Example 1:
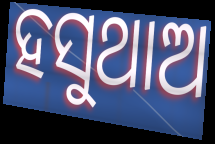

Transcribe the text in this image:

ହସୁଥାଅ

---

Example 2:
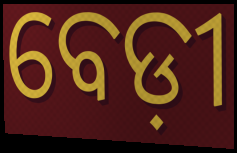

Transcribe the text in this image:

ବେଡ଼ୀ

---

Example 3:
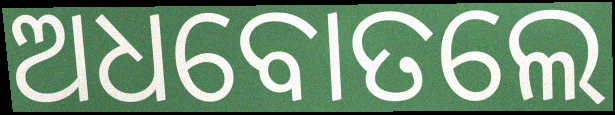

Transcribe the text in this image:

ଅଧବୋତଲେ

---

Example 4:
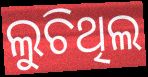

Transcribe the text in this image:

ଲୁଚିଥିଲ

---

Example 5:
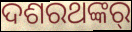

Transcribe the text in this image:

ଦଶରଥଙ୍କର୍